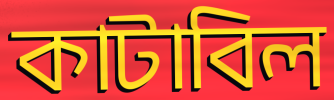
কাটাবিল